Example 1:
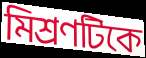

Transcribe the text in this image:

মিশ্রণটিকে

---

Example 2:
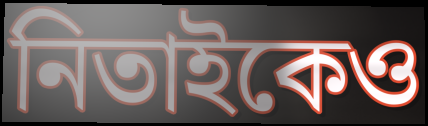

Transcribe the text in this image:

নিতাইকেও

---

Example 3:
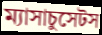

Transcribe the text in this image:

ম্যাসাচুসেটস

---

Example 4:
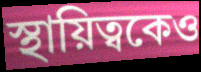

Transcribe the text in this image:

স্থায়িত্বকেও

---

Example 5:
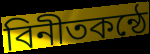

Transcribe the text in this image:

বিনীতকন্ঠে